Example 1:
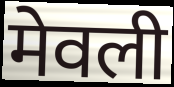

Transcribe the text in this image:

मेवली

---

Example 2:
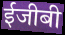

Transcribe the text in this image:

ईजीबी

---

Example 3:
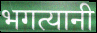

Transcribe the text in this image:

भगत्यानी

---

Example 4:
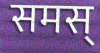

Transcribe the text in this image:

समस्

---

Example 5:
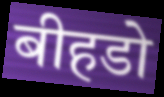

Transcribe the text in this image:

बीहडो